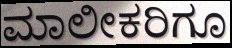
ಮಾಲೀಕರಿಗೂ